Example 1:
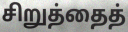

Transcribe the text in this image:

சிறுத்தைத்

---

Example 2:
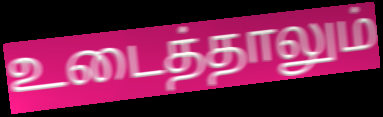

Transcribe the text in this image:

உடைத்தாலும்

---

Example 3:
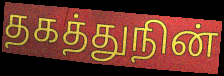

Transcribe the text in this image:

தகத்துநின்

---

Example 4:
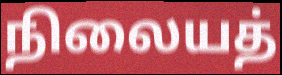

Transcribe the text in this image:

நிலையத்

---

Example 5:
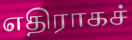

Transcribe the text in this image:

எதிராகச்